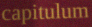
capitulum